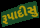
રૂપાદીસુ